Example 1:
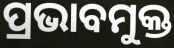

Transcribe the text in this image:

ପ୍ରଭାବମୁକ୍ତ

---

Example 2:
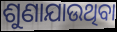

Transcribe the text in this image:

ଶୁଣାଯାଉଥିବା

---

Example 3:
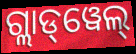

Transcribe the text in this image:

ଗ୍ଲାଡ୍‌ୱେଲ୍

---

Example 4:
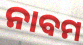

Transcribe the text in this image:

ନାବମ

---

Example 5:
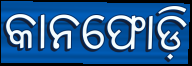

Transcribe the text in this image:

କାନଫୋଡ଼ି